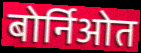
बोर्निओत